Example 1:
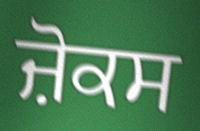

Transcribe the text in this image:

ਜ਼ੋਕਸ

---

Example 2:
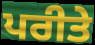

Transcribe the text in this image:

ਪਰੀਤੇ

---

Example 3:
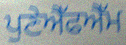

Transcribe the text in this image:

ਪੁਣੇਐੱਫਐੱਮ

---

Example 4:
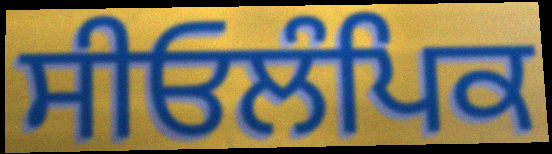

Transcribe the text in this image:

ਸੀਓਲੰਪਿਕ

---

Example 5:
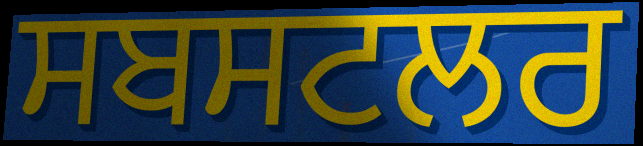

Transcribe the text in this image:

ਸਬਸਟਲਰ